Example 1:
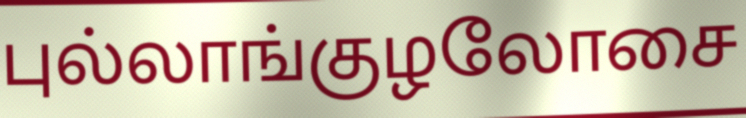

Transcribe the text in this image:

புல்லாங்குழலோசை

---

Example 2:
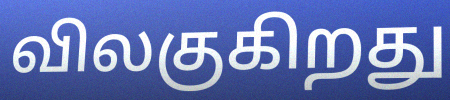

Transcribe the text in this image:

விலகுகிறது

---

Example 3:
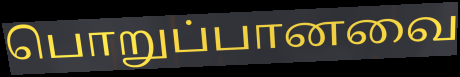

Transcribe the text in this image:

பொறுப்பானவை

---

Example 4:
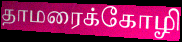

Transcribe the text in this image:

தாமரைக்கோழி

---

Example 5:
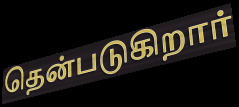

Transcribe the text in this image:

தென்படுகிறார்